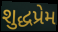
શુદ્ધપ્રેમ